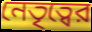
নেতৃত্বের